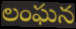
లంఘన